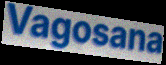
Vagosana